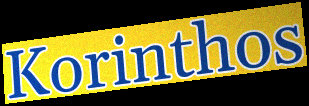
Korinthos